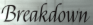
Breakdown